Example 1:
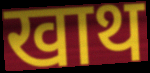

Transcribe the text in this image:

खाथ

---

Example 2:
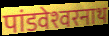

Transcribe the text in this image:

पांडवेश्वरनाथ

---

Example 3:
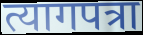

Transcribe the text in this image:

त्यागपत्रा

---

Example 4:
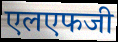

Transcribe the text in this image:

एलएफजी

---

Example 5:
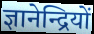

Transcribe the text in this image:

ज्ञानेन्द्रियों